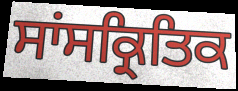
ਸਾਂਸਕ੍ਰਿਤਿਕ